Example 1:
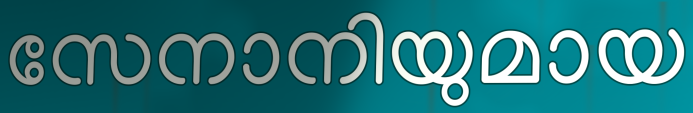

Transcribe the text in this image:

സേനാനിയുമായ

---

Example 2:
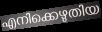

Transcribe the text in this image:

എനിക്കെഴുതിയ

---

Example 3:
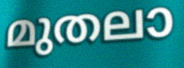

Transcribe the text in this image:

മുതലാ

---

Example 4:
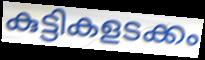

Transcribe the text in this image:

കുട്ടികളടക്കം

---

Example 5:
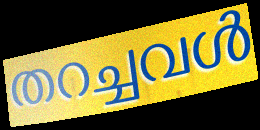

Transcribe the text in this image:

തറച്ചവൾ